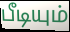
பீடியும்